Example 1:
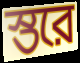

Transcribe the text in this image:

স্তরে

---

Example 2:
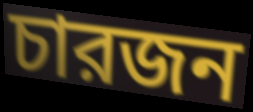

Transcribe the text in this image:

চারজন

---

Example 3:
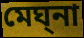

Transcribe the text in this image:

মেঘ্‌না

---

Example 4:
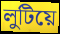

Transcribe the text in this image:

লুটিয়ে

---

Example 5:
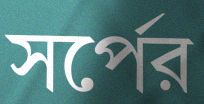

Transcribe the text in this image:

সর্পের